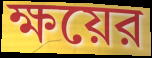
ক্ষয়ের